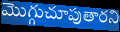
మొగ్గుచూపుతారని